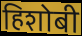
हिशोबी